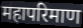
महापरिमाण